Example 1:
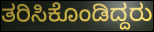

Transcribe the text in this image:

ತರಿಸಿಕೊಂಡಿದ್ದರು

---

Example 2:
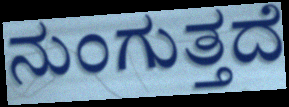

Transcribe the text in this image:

ನುಂಗುತ್ತದೆ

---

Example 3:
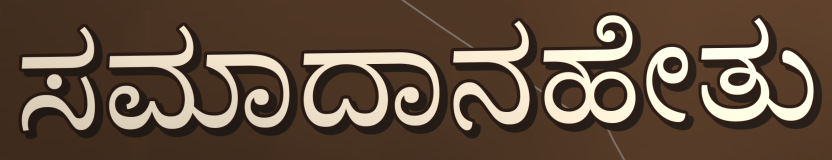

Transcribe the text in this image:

ಸಮಾದಾನಹೇತು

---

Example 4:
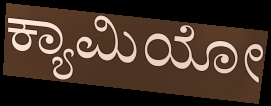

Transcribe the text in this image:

ಕ್ಯಾಮಿಯೋ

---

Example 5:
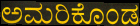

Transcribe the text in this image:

ಅಮರಿಕೊಂಡ